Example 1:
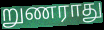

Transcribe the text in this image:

றுணராது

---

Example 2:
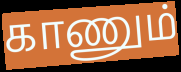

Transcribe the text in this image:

காணும்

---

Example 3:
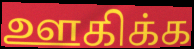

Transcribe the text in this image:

ஊகிக்க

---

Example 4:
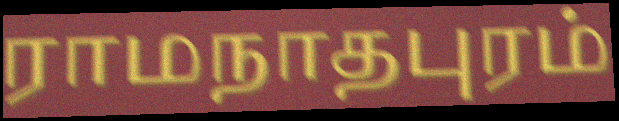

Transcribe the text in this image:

ராமநாதபுரம்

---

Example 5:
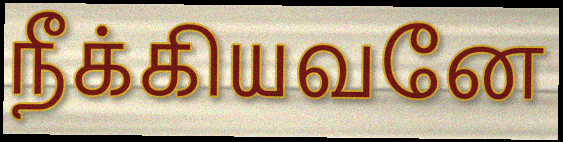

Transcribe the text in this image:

நீக்கியவனே